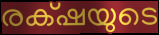
രക്‌ഷയുടെ